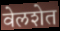
वेलशेत